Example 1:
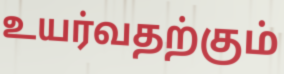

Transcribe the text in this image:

உயர்வதற்கும்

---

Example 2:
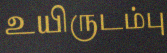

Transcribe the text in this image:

உயிருடம்பு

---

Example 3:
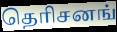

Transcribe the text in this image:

தெரிசனங்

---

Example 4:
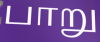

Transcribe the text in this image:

பாறு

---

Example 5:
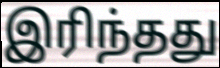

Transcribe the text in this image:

இரிந்தது